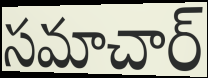
సమాచార్